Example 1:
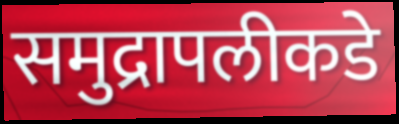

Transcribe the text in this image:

समुद्रापलीकडे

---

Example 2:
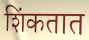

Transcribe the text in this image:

शिंकतात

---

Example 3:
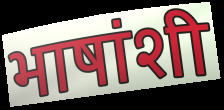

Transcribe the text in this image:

भाषांशी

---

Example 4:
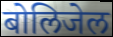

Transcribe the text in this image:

बोलिजेल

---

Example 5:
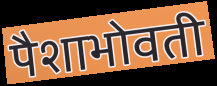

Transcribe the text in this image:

पैशाभोवती